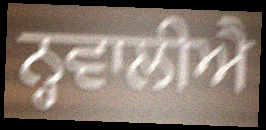
ਨ੍ਹਵਾਲੀਐ